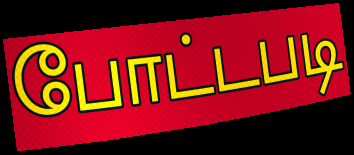
போட்டபடி